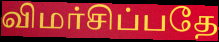
விமர்சிப்பதே